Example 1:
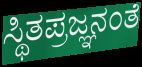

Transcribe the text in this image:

ಸ್ಥಿತಪ್ರಜ್ಞನಂತೆ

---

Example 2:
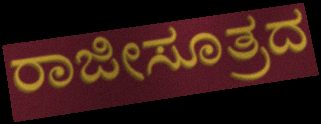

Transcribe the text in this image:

ರಾಜೀಸೂತ್ರದ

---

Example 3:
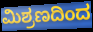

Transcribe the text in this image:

ಮಿಶ್ರಣದಿಂದ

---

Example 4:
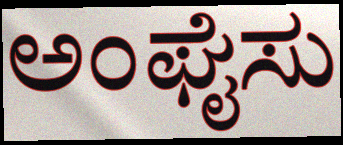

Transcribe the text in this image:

ಅಂಘೈಸು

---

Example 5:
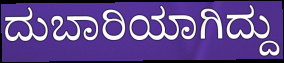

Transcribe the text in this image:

ದುಬಾರಿಯಾಗಿದ್ದು